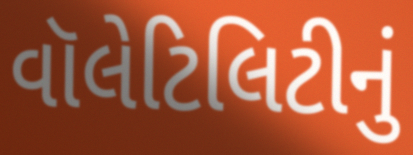
વૉલેટિલિટીનું